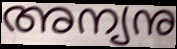
അന്യനു